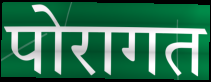
पोरागत